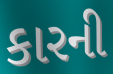
કારની